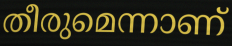
തീരുമെന്നാണ്